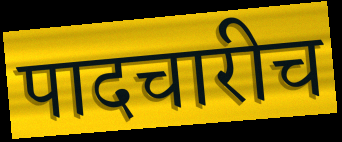
पादचारीच